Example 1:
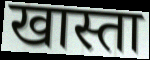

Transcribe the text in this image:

खास्ता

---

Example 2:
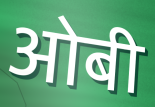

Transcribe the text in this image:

ओबी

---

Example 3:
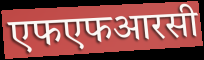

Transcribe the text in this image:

एफएफआरसी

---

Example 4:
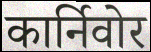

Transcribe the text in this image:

कार्निवोर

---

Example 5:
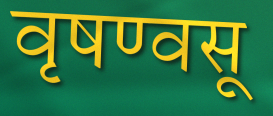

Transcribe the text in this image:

वृषण्वसू